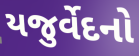
યજુર્વેદનો